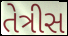
તેત્રીસ